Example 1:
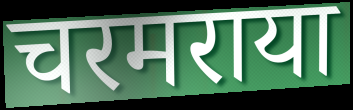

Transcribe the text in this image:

चरमराया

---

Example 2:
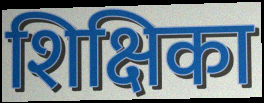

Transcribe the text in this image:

शिक्षिका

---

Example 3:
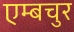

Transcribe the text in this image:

एम्बचुर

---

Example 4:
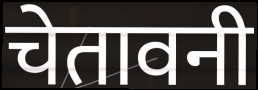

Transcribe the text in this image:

चेतावनी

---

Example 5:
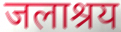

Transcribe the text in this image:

जलाश्रय